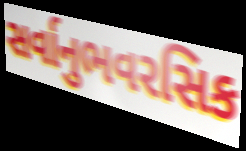
સર્વાનુભવરસિક